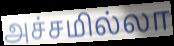
அச்சமில்லா